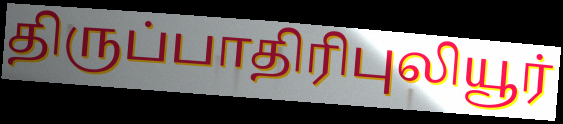
திருப்பாதிரிபுலியூர்